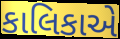
કાલિકાએ